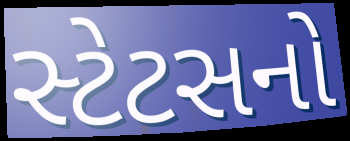
સ્ટેટસનો